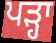
ਪੜ੍ਹਾ